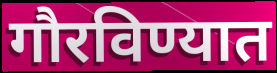
गौरविण्यात